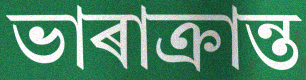
ভাৰাক্ৰান্ত